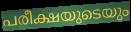
പരീക്ഷയുടെയും